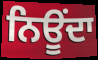
ਨਿਊਂਦਾ